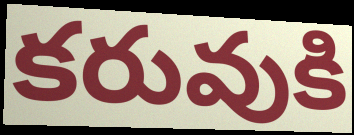
కరువుకి